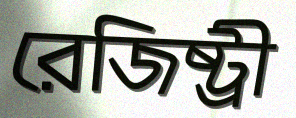
রেজিষ্ট্রী